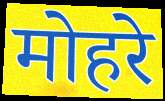
मोहरे